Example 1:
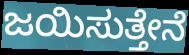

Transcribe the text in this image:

ಜಯಿಸುತ್ತೇನೆ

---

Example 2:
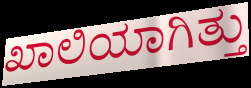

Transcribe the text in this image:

ಖಾಲಿಯಾಗಿತ್ತು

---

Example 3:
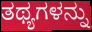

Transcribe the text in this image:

ತಥ್ಯಗಳನ್ನು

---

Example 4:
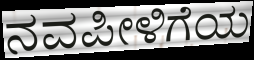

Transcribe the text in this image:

ನವಪೀಳಿಗೆಯ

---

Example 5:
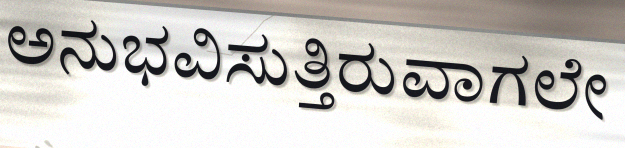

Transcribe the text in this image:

ಅನುಭವಿಸುತ್ತಿರುವಾಗಲೇ